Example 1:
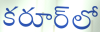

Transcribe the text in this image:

కరూర్‌లో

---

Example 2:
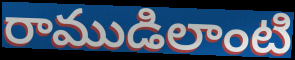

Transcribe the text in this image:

రాముడిలాంటి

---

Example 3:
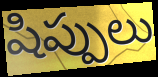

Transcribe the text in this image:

షిప్పులు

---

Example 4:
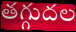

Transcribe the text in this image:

తగ్గుదల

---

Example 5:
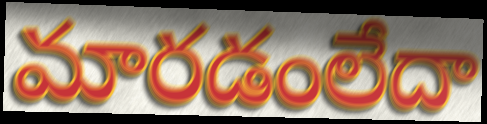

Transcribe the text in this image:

మారడంలేదా